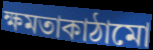
ক্ষমতাকাঠামো